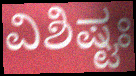
ವಿಶಿಷ್ಟಃ